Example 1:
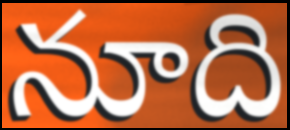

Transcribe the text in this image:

నూది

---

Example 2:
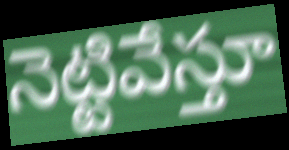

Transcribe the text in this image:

నెట్టివేస్తూ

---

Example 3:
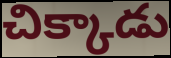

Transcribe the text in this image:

చిక్కాడు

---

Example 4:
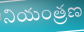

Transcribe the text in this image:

నియంత్రణ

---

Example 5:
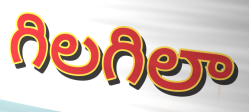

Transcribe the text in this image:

గిలగిలా